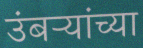
उंबऱ्यांच्या